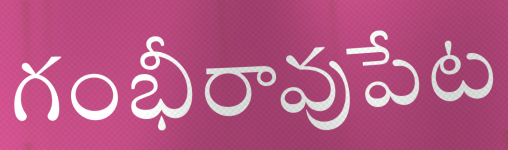
గంభీరావుపేట